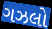
ગઝલો